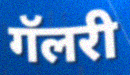
गॅलरी